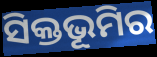
ସିକ୍ତଭୂମିର